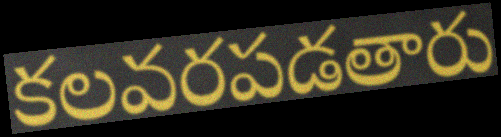
కలవరపడతారు